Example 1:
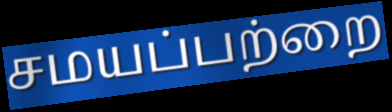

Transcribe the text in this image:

சமயப்பற்றை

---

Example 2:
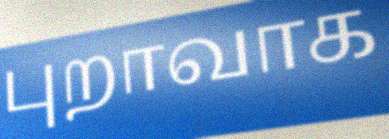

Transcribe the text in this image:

புறாவாக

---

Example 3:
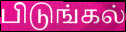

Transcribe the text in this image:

பிடுங்கல்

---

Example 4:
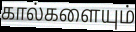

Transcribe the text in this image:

கால்களையும்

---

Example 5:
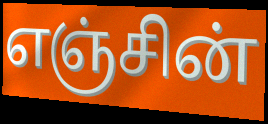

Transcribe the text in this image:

எஞ்சின்